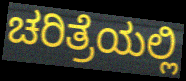
ಚರಿತ್ರೆಯಲ್ಲಿ